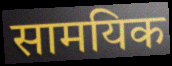
सामयिक